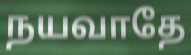
நயவாதே